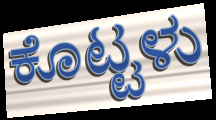
ಕೊಟ್ಟಳು